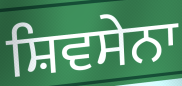
ਸ਼ਿਵਸੇਨਾ